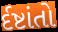
ર્દષ્ટાંતો